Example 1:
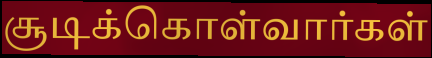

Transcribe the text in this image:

சூடிக்கொள்வார்கள்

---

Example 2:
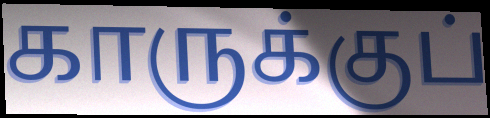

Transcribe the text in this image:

காருக்குப்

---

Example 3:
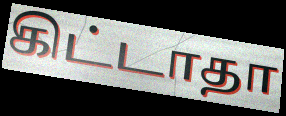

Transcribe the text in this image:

கிட்டாதா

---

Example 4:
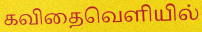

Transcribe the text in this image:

கவிதைவெளியில்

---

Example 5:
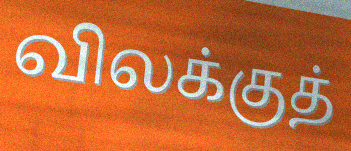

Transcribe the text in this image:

விலக்குத்